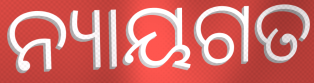
ନ୍ୟାୟଗତ